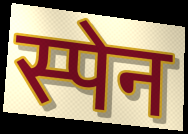
स्पेन